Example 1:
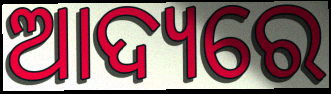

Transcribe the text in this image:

ଆଦ୍ୟରେ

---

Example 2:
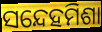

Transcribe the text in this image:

ସନ୍ଦେହମିଶା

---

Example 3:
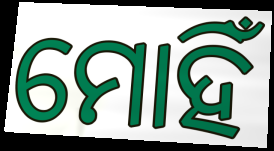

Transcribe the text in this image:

ମୋହିଁ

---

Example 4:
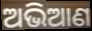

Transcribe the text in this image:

ଅଭିଆଣ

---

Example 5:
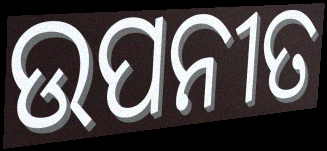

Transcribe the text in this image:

ଉପନୀତ